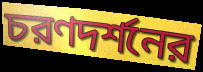
চরণদর্শনের